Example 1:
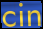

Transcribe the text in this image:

cin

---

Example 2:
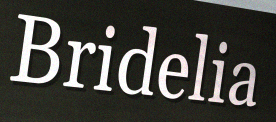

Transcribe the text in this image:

Bridelia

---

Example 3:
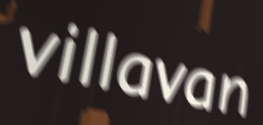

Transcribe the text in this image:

villavan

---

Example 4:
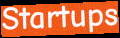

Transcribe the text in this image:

Startups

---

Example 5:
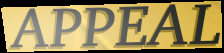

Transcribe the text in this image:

APPEAL